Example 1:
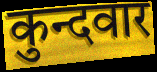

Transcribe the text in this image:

कुन्दवार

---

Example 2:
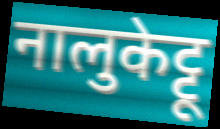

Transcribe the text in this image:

नालुकेट्टू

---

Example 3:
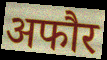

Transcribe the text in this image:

अफौर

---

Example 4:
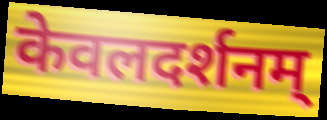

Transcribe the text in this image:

केवलदर्शनम्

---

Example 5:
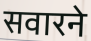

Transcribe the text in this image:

सवारने